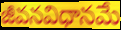
జీవనవిధానమే